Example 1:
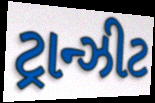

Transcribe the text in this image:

ટ્રાન્ઝીટ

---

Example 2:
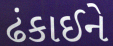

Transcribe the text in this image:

ઢંકાઈને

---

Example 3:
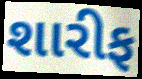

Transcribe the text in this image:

શારીફ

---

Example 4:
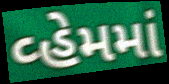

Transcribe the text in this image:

વ્હેમમાં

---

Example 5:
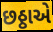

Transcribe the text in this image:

છઠ્ઠાએ